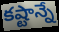
కష్టాన్నే